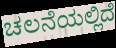
ಚಲನೆಯಲ್ಲಿದೆ